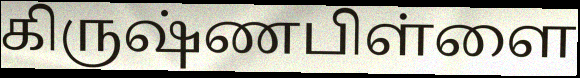
கிருஷ்ணபிள்ளை